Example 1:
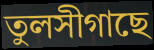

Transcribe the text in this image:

তুলসীগাছে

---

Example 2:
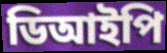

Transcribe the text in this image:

ডিআইপি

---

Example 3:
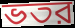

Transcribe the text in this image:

ভতর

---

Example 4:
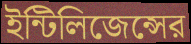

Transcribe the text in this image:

ইন্টিলিজেন্সের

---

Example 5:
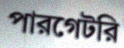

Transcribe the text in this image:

পারগেটরি